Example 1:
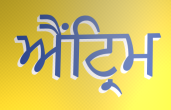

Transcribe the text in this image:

ਐਂਟ੍ਰਿਮ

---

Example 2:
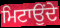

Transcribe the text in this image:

ਮਿਟਾਉਂਦੇ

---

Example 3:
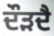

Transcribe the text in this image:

ਦੌੜਦੈ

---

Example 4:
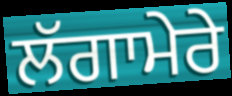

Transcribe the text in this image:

ਲੱਗਾਮੇਰੇ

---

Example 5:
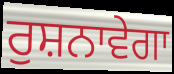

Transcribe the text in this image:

ਰੁਸ਼ਨਾਵੇਗਾ